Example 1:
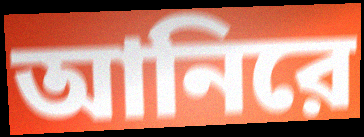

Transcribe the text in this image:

আনিরে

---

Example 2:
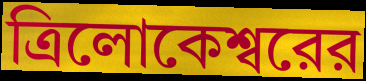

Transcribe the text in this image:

ত্রিলোকেশ্বরের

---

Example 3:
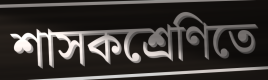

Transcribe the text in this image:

শাসকশ্রেণিতে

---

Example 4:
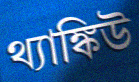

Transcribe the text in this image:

থ্যাঙ্কিউ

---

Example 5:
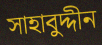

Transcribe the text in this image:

সাহাবুদ্দীন